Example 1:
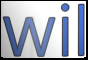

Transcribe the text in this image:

wil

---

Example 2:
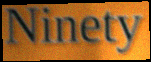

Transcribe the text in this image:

Ninety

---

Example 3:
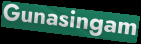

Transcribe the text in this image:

Gunasingam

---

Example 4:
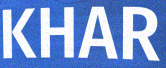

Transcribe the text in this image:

KHAR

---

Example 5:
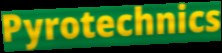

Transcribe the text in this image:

Pyrotechnics